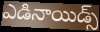
ఎడినాయిడ్స్